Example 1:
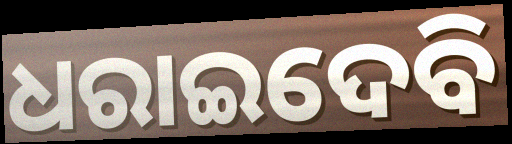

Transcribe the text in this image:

ଧରାଇଦେବି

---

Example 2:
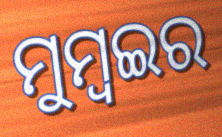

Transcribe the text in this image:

ମୁମ୍ବଇର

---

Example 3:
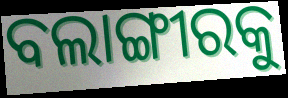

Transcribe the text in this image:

ବଲାଙ୍ଗୀରକୁ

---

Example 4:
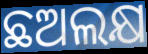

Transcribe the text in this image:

ଛଅଲକ୍ଷ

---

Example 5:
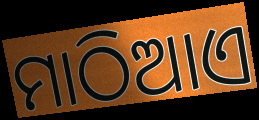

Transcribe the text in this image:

ମାଠିଆଏ